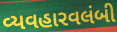
વ્યવહારવલંબી